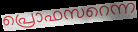
പ്രൊഫസറെന്ന